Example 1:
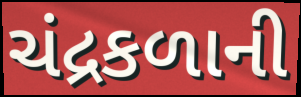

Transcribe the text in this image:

ચંદ્રકળાની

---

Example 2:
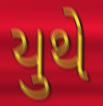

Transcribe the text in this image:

યુથે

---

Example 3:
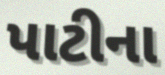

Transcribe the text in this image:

પાટીના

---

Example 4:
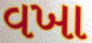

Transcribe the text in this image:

વખા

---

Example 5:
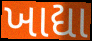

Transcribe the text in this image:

ખાદ્યા